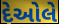
દેઓલે